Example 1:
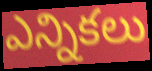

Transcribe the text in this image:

ఎన్నికలు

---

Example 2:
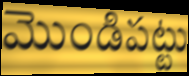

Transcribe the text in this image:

మొండిపట్టు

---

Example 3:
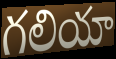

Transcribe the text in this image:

గలియా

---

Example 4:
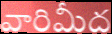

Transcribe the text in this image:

వారిమీద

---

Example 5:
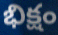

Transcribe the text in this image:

భిక్షం